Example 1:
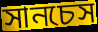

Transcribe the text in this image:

সানচেস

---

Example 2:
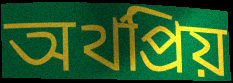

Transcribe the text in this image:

অর্থপ্রিয়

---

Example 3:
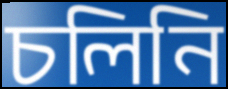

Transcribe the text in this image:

চলিনি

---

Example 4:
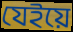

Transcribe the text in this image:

যেইয়ে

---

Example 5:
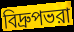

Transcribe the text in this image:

বিদ্রুপভরা